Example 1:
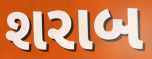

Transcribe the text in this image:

શરાબ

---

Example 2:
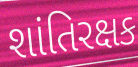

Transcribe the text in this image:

શાંતિરક્ષક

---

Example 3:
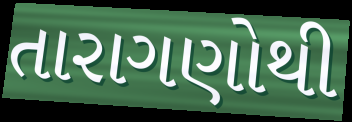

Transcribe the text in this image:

તારાગણોથી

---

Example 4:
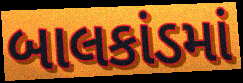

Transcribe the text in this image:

બાલકાંડમાં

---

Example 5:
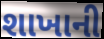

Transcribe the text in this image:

શાખાની